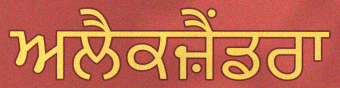
ਅਲੈਕਜ਼ੈਂਡਰਾ